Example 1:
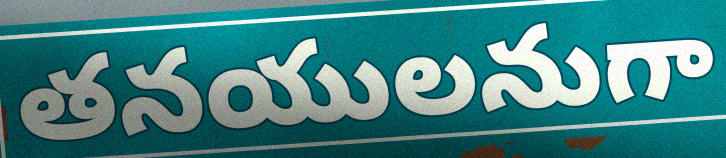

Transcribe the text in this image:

తనయులనుగా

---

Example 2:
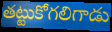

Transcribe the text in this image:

తట్టుకోగలిగాడు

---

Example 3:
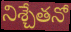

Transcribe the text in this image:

నిశ్చేతనో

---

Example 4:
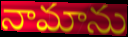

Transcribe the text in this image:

నామాను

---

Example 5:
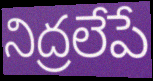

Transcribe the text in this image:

నిద్రలేపే